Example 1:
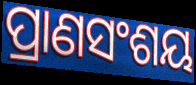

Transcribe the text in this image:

ପ୍ରାଣସଂଶୟ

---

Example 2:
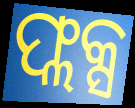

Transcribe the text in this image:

ଫ୍ଲକ୍ସ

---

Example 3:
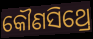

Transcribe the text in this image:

କୌଣସିଥ୍ରେ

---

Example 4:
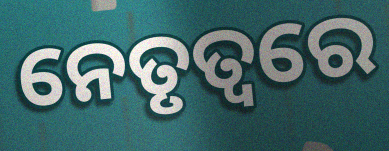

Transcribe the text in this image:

ନେତୃତ୍ଵରେ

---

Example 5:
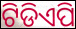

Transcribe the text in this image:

ଟିଡିଏପି